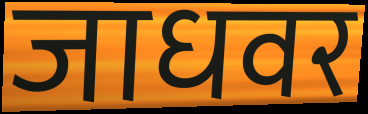
जाधवर